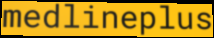
medlineplus